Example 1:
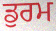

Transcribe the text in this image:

ਡੁਰਮ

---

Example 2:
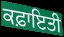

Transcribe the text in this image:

ਕਫ਼ਾਇਤੀ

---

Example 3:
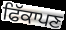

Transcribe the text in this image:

ਫਿੱਕਾਪਣ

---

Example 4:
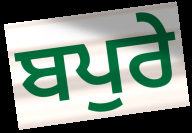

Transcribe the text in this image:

ਬਪੁਰੇ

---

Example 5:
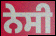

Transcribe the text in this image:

ਨੇਸੀ